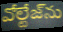
వోల్టేజ్‌ను